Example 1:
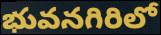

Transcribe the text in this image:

భువనగిరిలో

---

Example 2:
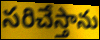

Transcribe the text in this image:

సరిచేస్తాను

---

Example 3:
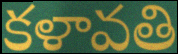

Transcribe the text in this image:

కళావతి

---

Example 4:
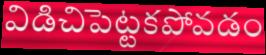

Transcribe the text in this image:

విడిచిపెట్టకపోవడం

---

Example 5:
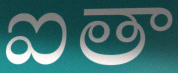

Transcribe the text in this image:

ఐతా